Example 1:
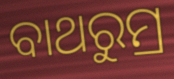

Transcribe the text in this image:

ବାଥରୁମ୍ର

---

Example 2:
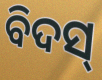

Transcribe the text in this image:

ବିଦସ୍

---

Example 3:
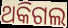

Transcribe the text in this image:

ଥକିଗଲ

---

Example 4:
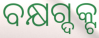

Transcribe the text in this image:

ବକ୍ଷଗ୍ଦକ୍ଟ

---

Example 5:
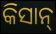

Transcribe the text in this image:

କିସାନ୍